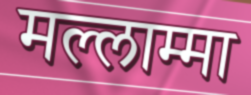
मल्लाम्मा